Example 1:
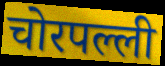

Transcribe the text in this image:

चोरपल्ली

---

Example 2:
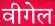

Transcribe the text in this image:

वीगेल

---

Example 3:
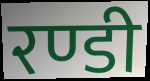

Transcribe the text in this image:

रण्डी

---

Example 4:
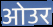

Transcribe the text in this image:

ओउर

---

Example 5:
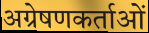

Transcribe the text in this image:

अग्रेषणकर्ताओं